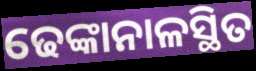
ଢେଙ୍କାନାଳସ୍ଥିତ